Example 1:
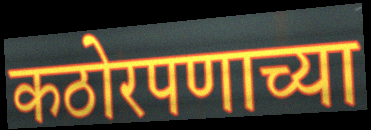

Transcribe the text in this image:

कठोरपणाच्या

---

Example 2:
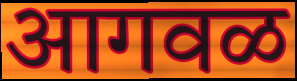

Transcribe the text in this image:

आगवळ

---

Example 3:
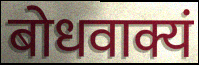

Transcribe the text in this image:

बोधवाक्यं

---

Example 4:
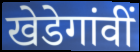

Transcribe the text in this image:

खेडेगांवीं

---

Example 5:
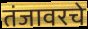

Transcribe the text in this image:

तंजावरचे